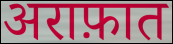
अराफ़ात